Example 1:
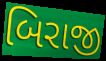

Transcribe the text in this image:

બિરાજી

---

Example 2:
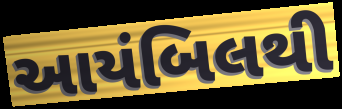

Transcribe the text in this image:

આયંબિલથી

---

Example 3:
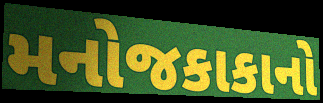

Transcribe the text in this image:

મનોજકાકાનો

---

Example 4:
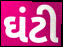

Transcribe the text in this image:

ઘંટી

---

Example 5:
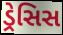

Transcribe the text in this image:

ડ્રેસિસ